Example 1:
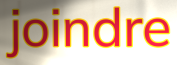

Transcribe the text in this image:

joindre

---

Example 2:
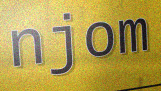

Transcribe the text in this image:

njom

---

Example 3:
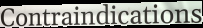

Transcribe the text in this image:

Contraindications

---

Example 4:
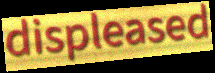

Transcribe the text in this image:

displeased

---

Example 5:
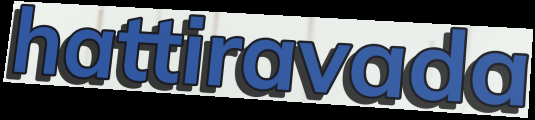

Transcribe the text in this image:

hattiravada